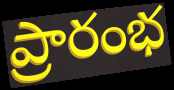
ప్రారంభ